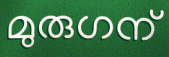
മുരുഗന്